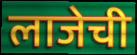
लाजेची